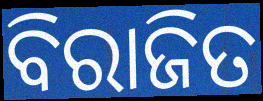
ବିରାଜିତ